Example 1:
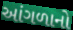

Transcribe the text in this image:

આંગળાનો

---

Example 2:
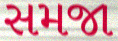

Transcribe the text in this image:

સમજા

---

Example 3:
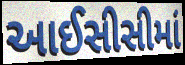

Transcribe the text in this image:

આઈસીસીમાં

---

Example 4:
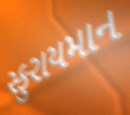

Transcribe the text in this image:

સ્કુરાયમાન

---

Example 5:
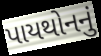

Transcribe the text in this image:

પાયથોનનું